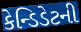
કેન્ડિડેટની